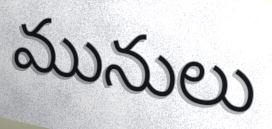
మునులు